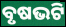
ବୃଷଭଟି